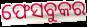
ଫେସବୁକର